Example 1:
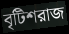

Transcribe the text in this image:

বৃটিশরাজ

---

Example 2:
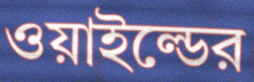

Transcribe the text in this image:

ওয়াইল্ডের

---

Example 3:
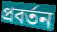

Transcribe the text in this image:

প্রবর্তন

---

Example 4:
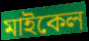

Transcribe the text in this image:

মাইকেল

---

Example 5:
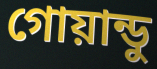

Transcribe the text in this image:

গোয়ান্ডু